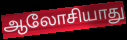
ஆலோசியாது